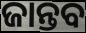
ଜାନ୍ତବ